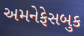
અમનેફેસબુક